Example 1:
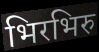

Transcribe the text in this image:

भिरभिरु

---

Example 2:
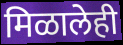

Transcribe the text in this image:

मिळालेही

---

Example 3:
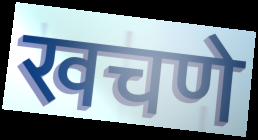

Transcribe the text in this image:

खचणे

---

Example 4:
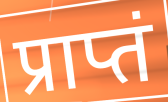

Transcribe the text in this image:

प्राप्तं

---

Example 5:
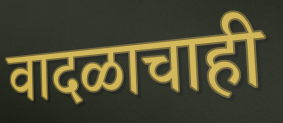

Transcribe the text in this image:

वादळाचाही